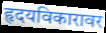
हृदयविकारावर